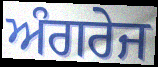
ਅੰਗਰੇਜ